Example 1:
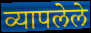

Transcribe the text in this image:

व्यापलेले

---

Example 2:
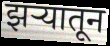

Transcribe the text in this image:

झऱ्यातून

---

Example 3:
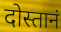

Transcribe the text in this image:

दोस्तानं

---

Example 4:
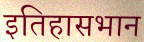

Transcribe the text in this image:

इतिहासभान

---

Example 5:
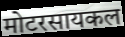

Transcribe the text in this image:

मोटरसायकल